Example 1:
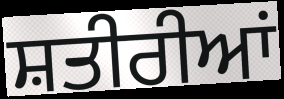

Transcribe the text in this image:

ਸ਼ਤੀਰੀਆਂ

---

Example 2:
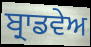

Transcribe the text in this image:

ਬ੍ਰਾਡਵੇਅ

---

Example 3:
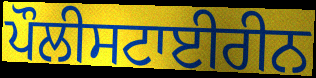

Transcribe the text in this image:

ਪੌਲੀਸਟਾਈਰੀਨ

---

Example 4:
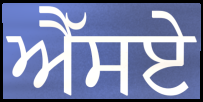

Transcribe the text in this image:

ਐੱਸਏ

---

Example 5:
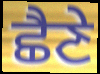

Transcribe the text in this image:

ਛੈਣੇ